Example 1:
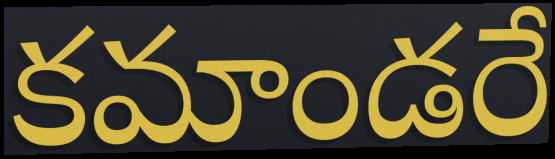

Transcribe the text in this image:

కమాండరే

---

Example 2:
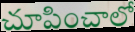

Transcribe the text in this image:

చూపించాలో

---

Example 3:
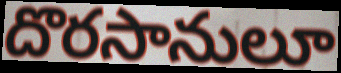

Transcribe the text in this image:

దొరసానులూ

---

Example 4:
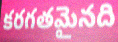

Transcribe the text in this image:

కరగతమైనది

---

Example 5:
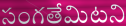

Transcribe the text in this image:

సంగతేమిటని